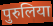
पुरुलिया